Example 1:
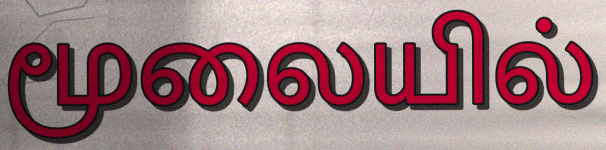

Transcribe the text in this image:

மூலையில்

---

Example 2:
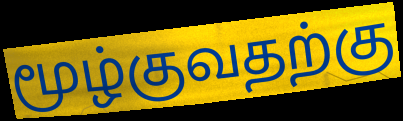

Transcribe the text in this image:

மூழ்குவதற்கு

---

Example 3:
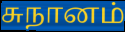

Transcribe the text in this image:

சுநானம்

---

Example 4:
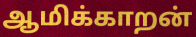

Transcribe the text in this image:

ஆமிக்காறன்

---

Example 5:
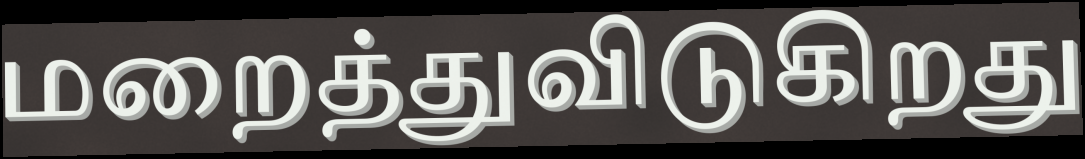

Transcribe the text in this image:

மறைத்துவிடுகிறது